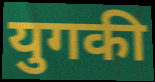
युगकी